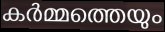
കർമ്മത്തെയും